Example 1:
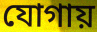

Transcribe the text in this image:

যোগায়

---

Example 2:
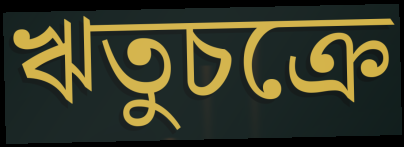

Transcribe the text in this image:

ঋতুচক্রে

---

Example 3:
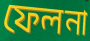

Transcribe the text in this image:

ফেলনা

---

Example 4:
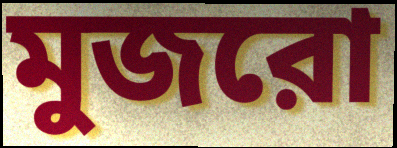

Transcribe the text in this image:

মুজরো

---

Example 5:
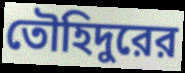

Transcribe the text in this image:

তৌহিদুরের